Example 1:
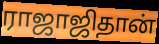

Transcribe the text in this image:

ராஜாஜிதான்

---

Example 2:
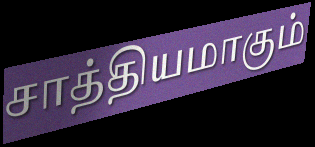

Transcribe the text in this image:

சாத்தியமாகும்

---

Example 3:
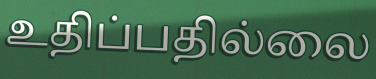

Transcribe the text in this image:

உதிப்பதில்லை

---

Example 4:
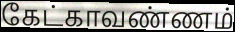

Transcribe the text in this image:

கேட்காவண்ணம்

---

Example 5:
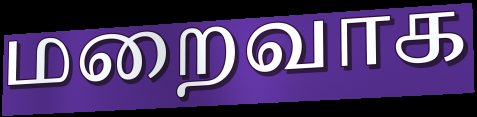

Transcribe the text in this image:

மறைவாக